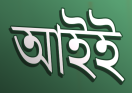
আইই